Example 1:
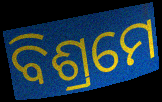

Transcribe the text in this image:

ବିଶ୍ରମେ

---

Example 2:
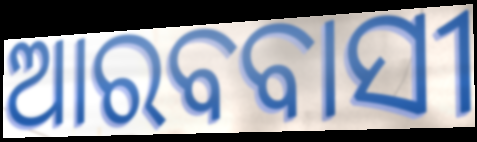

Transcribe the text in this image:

ଆରବବାସୀ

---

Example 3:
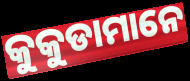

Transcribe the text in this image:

କୁକୁଡାମାନେ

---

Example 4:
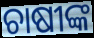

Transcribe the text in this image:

ଚାଷୀଙ୍କ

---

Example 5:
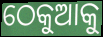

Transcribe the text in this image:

ଠେକୁଆକୁ